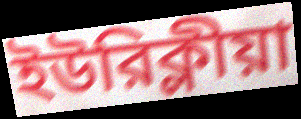
ইউরিক্লীয়া